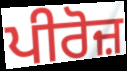
ਪੀਰੋਜ਼